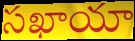
సఖాయా